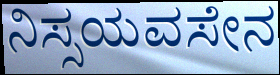
ನಿಸ್ಸಯವಸೇನ